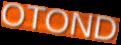
OTOND